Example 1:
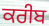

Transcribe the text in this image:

ਕਰੀਬ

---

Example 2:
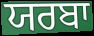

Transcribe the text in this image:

ਯਰਬਾ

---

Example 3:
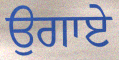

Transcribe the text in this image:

ਉਗਾਏ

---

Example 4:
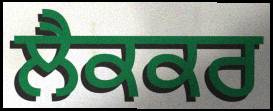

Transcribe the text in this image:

ਲੈਕਕਰ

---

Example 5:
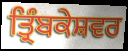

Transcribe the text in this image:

ਤ੍ਰਿੰਬਕੇਸ਼ਵਰ